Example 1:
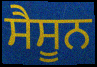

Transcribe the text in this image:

ਸੈਸੂਨ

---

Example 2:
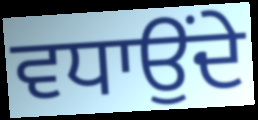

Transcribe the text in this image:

ਵਧਾਉਂਦੇ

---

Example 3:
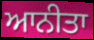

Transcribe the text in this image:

ਆਨੀਤਾ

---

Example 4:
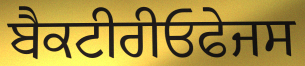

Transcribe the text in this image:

ਬੈਕਟੀਰੀਓਫੇਜਸ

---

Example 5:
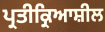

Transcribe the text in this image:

ਪ੍ਰਤੀਕ੍ਰਿਆਸ਼ੀਲ